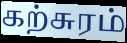
கற்சுரம்